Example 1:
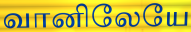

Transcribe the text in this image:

வானிலேயே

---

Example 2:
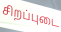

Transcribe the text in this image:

சிறப்புடை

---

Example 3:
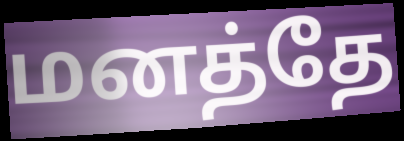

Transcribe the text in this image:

மனத்தே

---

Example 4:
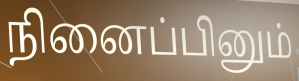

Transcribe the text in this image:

நினைப்பினும்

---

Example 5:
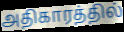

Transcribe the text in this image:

அதிகாரத்தில்